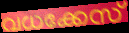
വധക്കേസ്